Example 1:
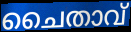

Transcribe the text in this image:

ചൈതാവ്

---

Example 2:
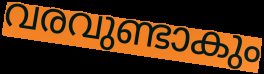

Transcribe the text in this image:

വരവുണ്ടാകും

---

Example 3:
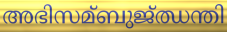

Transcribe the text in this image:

അഭിസമ്ബുജ്ഝന്തി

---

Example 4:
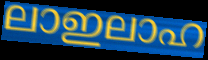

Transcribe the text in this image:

ലാഇലാഹ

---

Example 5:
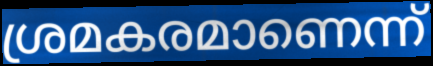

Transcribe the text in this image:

ശ്രമകരമാണെന്ന്